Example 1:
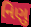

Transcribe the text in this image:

નિણુ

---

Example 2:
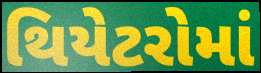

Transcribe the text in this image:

થિયેટરોમાં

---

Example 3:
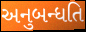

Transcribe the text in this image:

અનુબન્ધતિ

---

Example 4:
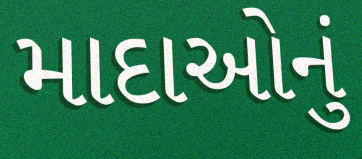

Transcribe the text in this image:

માદાઓનું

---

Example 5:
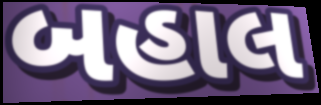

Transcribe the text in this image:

બહાલ